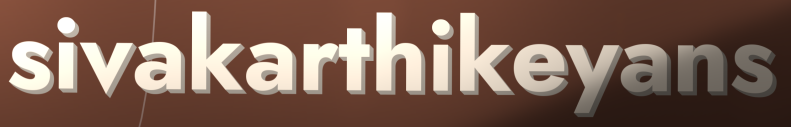
sivakarthikeyans